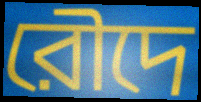
রৌদে